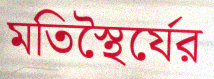
মতিস্থৈর্যের